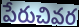
పేరుచివర